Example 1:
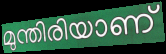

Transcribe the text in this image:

മുന്തിരിയാണ്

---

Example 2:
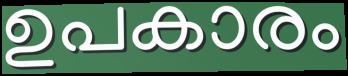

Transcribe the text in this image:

ഉപകാരം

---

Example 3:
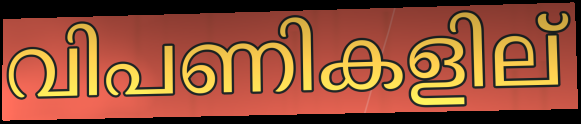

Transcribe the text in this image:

വിപണികളില്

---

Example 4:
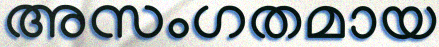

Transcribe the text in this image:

അസംഗതമായ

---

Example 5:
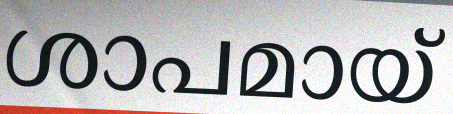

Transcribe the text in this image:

ശാപമായ്